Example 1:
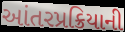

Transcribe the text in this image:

આંતરપ્રક્રિયાની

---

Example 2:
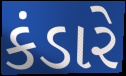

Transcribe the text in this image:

કંડારે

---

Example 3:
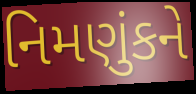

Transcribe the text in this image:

નિમણુંકને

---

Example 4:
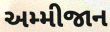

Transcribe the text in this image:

અમ્મીજાન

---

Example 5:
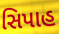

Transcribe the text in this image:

સિપાહ